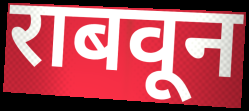
राबवून